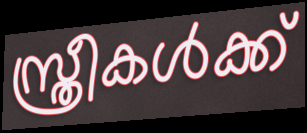
സ്ത്രീകൾക്ക്